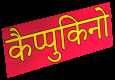
कैप्पुकिनो